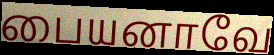
பையனாவே